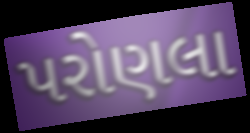
પરોણલા